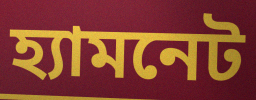
হ্যামনেট